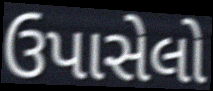
ઉપાસેલો